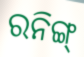
ରନିଙ୍ଗ୍